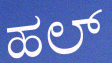
ಹಲ್